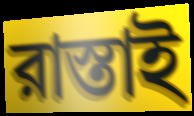
রাস্তাই